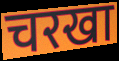
चरखा